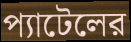
প্যাটেলের